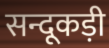
सन्दूकड़ी